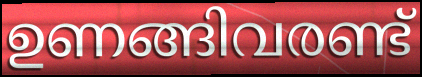
ഉണങ്ങിവരണ്ട്